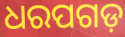
ଧରପଗଡ଼